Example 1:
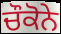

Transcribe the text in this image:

ਚੌਕੋਨੇ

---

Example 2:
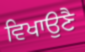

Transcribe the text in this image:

ਵਿਖਾਉਣੈ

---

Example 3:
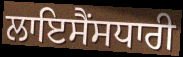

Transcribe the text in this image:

ਲਾਇਸੈਂਸਧਾਰੀ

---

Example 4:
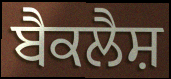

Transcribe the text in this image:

ਬੈਕਲੈਸ਼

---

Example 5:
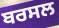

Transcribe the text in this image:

ਬਰਸਲ